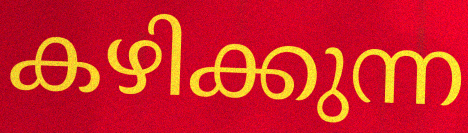
കഴിക്കുന്ന